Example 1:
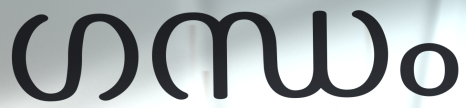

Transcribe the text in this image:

ഗന്ധം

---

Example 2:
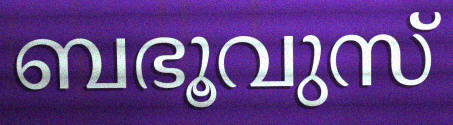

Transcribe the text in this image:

ബഭൂവുസ്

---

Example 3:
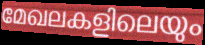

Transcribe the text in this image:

മേഖലകളിലെയും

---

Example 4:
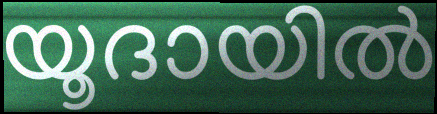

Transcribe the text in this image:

യൂദായിൽ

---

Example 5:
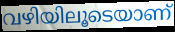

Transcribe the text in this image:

വഴിയിലൂടെയാണ്